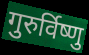
गुरुर्विष्णु